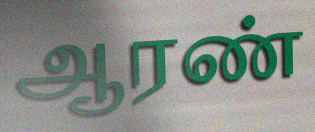
ஆரண்